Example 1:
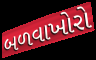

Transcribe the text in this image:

બળવાખોરો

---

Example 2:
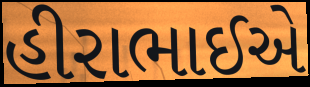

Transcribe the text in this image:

હીરાભાઈએ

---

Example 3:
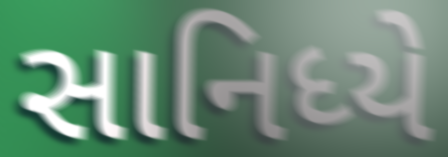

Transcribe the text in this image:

સાનિધ્યે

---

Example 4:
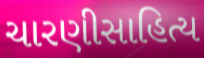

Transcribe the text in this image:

ચારણીસાહિત્ય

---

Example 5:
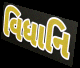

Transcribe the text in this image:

વિધાનિ